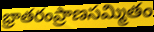
భ్రాతరంప్రాణసమ్మితం